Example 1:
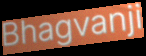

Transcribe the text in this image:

Bhagvanji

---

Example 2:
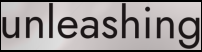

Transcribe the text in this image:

unleashing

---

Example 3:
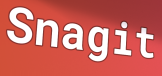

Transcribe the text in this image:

Snagit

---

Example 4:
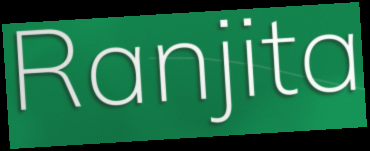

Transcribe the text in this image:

Ranjita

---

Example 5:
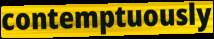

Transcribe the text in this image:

contemptuously